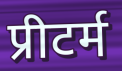
प्रीटर्म